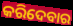
କରିଦେବାର